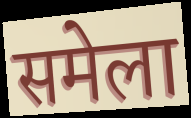
समेला